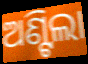
ଅଣ୍ଟିଲା